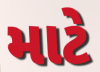
માટે